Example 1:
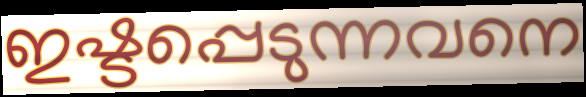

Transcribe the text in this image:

ഇഷ്ടപ്പെടുന്നവനെ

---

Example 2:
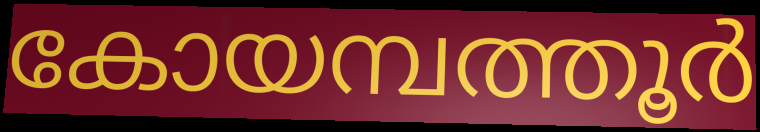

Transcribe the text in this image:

കോയമ്പത്തൂർ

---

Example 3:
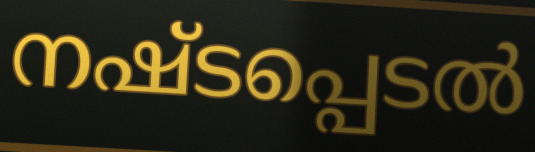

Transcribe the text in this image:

നഷ്ടപ്പെടൽ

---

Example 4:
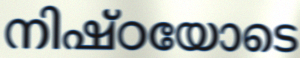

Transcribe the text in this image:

നിഷ്ഠയോടെ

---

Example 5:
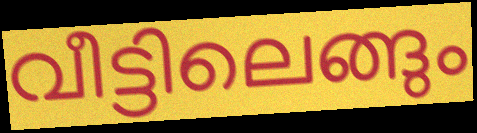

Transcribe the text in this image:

വീട്ടിലെങ്ങും